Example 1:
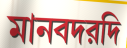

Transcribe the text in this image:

মানবদরদি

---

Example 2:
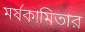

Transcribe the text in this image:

মর্ষকামিতার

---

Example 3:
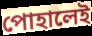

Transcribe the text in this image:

পোহালেই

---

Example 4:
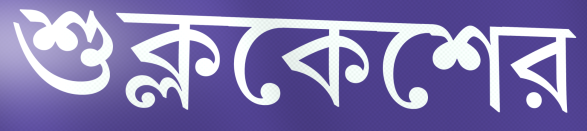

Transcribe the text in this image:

শুক্লকেশের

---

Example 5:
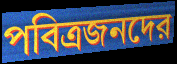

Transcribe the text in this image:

পবিত্রজনদের